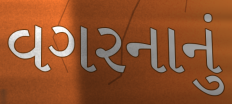
વગરનાનું